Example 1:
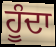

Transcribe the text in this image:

ਹੂੰਦਾ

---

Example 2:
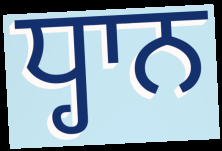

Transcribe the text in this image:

ਧ੍ਹਾਨ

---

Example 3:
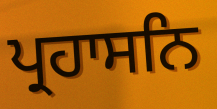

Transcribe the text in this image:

ਪ੍ਰਹਾਸਨਿ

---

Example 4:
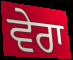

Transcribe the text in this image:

ਵੇਰਾ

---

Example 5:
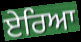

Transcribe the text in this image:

ਏਰਿਆ